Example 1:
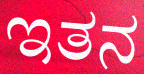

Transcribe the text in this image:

ಇತನ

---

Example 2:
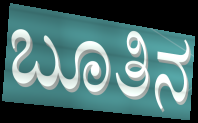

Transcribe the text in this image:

ಬೂತಿನ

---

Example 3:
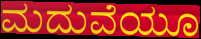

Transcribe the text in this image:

ಮದುವೆಯೂ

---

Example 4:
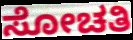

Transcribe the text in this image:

ಸೋಚತಿ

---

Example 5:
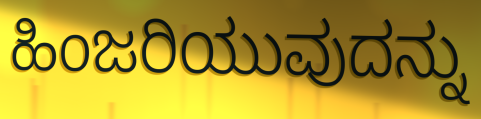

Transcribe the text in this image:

ಹಿಂಜರಿಯುವುದನ್ನು